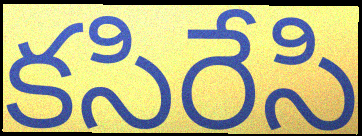
కసిరేసి